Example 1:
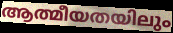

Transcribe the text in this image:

ആത്മീയതയിലും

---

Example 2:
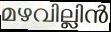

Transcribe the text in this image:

മഴവില്ലിൻ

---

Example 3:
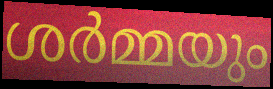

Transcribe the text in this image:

ശർമ്മയും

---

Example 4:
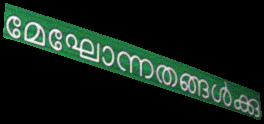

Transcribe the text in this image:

മേഘോന്നതങ്ങൾക്കു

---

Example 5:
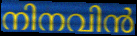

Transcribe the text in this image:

നിനവിൻ